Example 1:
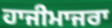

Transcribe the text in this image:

ਹਾਜੀਮਾਜਰਾ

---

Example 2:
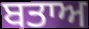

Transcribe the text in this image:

ਬਤਾਅ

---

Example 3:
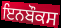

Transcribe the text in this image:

ਇਨਬੌਕਸ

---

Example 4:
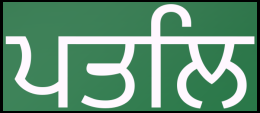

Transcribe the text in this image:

ਪਤਲਿ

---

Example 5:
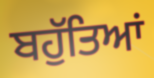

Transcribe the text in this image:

ਬਹੁੱਤਿਆਂ